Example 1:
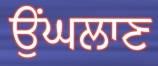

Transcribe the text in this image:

ਉਂਘਲਾਣ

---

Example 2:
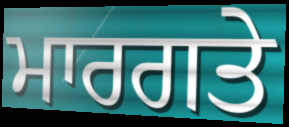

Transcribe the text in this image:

ਮਾਰਗਤੇ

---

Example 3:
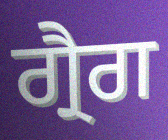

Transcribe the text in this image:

ਗ੍ਰੈਗ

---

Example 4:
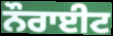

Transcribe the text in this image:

ਨੌਰਾਈਟ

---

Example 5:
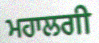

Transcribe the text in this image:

ਮਹਾਲਗੀ